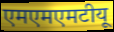
एमएमएमटीयू